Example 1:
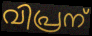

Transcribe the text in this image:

വിപ്രന്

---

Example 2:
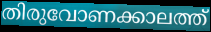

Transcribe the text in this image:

തിരുവോണക്കാലത്ത്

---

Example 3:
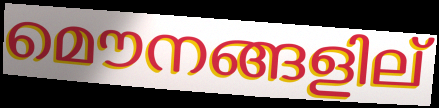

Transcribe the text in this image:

മൌനങ്ങളില്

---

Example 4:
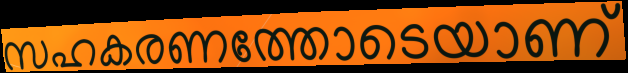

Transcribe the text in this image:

സഹകരണത്തോടെയാണ്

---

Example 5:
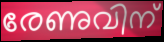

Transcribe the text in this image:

രേണുവിന്